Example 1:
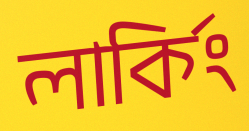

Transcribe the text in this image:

লার্কিং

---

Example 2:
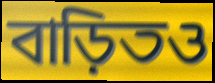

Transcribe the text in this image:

বাড়িতও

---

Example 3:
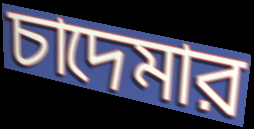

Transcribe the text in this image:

চাদেমার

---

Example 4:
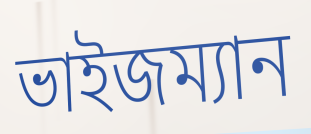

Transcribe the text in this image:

ভাইজম্যান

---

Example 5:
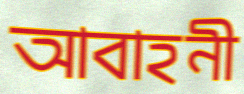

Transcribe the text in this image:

আবাহনী